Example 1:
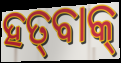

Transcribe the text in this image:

ହତ୍‌ବାକ୍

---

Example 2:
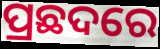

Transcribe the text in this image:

ପ୍ରଛଦରେ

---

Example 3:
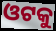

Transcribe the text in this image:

ଓଟକୁ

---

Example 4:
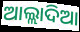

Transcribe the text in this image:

ଆଲ୍ଲାଦିଆ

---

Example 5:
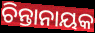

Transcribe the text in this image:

ଚିନ୍ତାନାୟକ